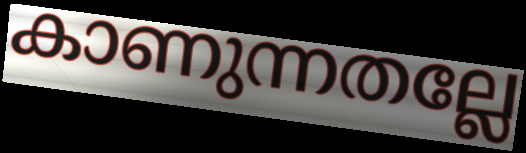
കാണുന്നതല്ലേ